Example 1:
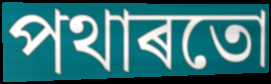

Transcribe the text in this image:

পথাৰতো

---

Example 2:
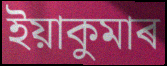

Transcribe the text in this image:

ইয়াকুমাৰ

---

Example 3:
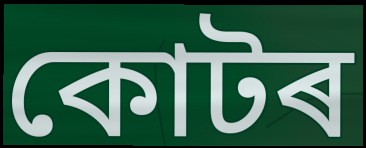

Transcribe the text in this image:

কোটৰ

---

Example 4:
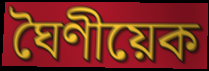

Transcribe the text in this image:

ঘৈণীয়েক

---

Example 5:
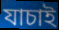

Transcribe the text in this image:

যাচাই